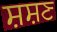
ਸ਼ਸ਼ਣ